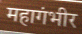
महागंभीर